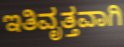
ಇತಿವೃತ್ತವಾಗಿ